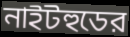
নাইটহুডের